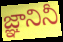
జ్ఞానినీ